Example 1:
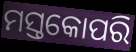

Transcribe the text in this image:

ମସ୍ତକୋପରି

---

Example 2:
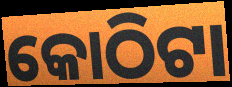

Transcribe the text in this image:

କୋଠିଟା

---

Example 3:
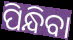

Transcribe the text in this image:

ପିନ୍ଧିବା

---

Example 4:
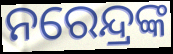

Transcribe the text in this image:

ନରେନ୍ଦ୍ରଙ୍କ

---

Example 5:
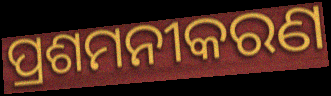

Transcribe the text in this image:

ପ୍ରଶମନୀକରଣ